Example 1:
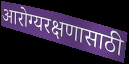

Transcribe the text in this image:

आरोग्यरक्षणासाठी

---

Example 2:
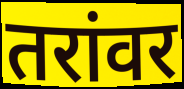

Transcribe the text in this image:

तरांवर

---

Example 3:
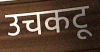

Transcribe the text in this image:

उचकटू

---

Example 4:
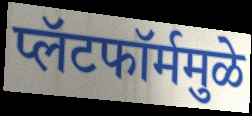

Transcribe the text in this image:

प्लॅटफॉर्ममुळे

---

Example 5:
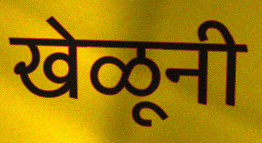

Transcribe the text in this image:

खेळूनी